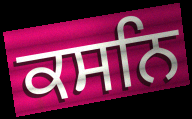
ਕਸਨਿ